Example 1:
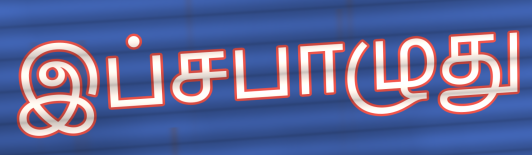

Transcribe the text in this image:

இப்சபாழுது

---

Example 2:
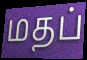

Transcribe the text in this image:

மதப்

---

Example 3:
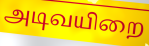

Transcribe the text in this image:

அடிவயிறை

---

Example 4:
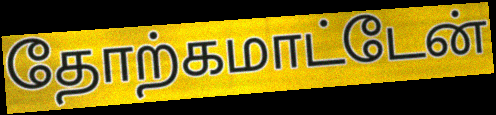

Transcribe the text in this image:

தோற்கமாட்டேன்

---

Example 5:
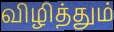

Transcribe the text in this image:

விழித்தும்